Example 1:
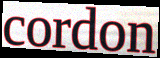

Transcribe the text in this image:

cordon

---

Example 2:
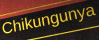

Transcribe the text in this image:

Chikungunya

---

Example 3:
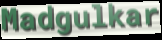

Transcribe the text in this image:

Madgulkar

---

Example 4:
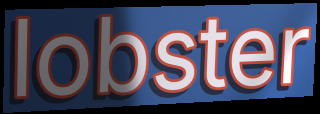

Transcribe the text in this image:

lobster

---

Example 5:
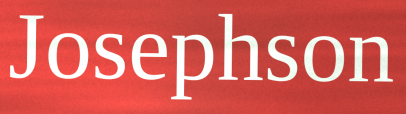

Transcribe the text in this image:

Josephson